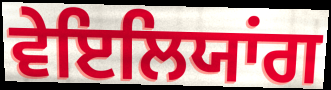
ਵੇਇਲਿਯਾਂਗ